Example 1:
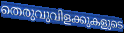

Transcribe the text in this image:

തെരുവുവിളക്കുകളുടെ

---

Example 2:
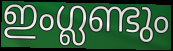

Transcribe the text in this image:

ഇംഗ്ലണ്ടും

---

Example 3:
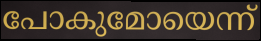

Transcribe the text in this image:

പോകുമോയെന്ന്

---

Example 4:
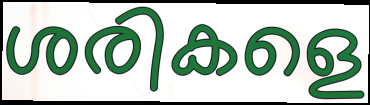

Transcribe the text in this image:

ശരികളെ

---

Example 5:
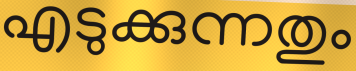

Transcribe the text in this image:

എടുക്കുന്നതും